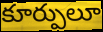
కూర్పులూ